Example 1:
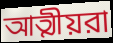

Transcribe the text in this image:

আত্মীয়রা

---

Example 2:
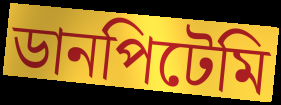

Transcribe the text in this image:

ডানপিটেমি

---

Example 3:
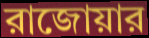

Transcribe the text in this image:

রাজোয়ার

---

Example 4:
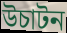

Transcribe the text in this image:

উচাটন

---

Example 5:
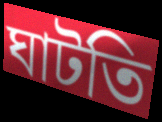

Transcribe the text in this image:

ঘাটতি